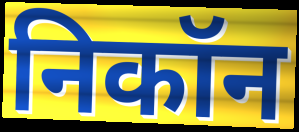
निकॉन